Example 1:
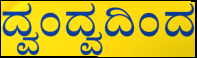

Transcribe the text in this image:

ದ್ವಂದ್ವದಿಂದ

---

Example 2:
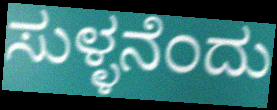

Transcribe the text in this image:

ಸುಳ್ಳನೆಂದು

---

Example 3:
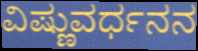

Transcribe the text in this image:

ವಿಷ್ಣುವರ್ಧನನ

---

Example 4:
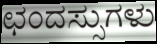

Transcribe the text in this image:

ಛಂದಸ್ಸುಗಳು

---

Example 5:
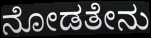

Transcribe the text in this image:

ನೋಡತೇನು